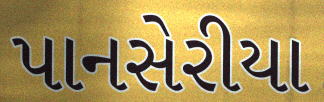
પાનસેરીયા